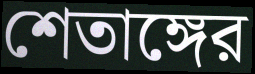
শেতাঙ্গের